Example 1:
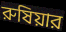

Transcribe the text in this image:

রুষিয়ার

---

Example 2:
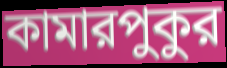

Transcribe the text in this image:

কামারপুকুর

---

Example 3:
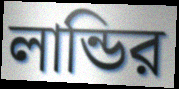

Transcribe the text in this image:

লান্ডির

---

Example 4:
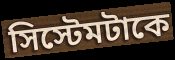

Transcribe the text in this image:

সিস্টেমটাকে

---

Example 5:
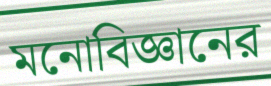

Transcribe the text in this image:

মনোবিজ্ঞানের